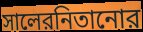
সালেরনিতানোর